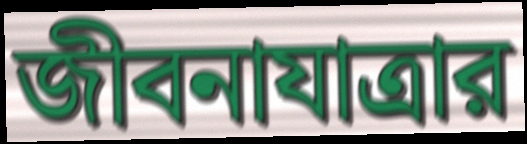
জীবনাযাত্রার